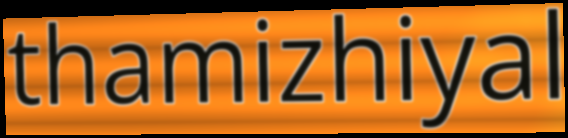
thamizhiyal